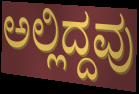
ಅಲ್ಲಿದ್ದವು